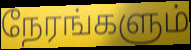
நேரங்களும்